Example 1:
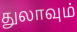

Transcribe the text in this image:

துலாவும்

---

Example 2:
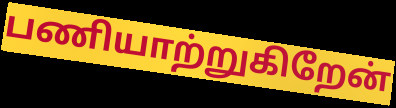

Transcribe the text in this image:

பணியாற்றுகிறேன்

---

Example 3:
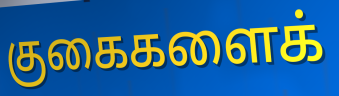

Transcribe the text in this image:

குகைகளைக்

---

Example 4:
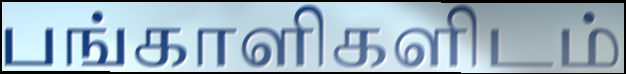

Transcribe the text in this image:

பங்காளிகளிடம்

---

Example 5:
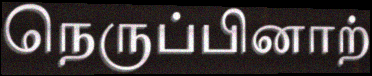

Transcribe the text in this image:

நெருப்பினாற்